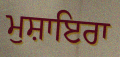
ਮੁਸ਼ਾਇਰਾ